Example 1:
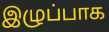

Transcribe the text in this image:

இழுப்பாக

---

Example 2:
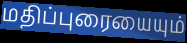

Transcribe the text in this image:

மதிப்புரையையும்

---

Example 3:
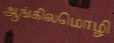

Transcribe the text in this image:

ஆங்கிலமொழி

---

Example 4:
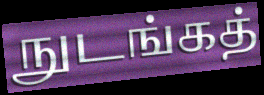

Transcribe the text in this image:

நுடங்கத்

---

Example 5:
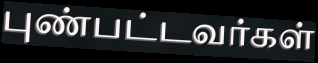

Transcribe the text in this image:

புண்பட்டவர்கள்